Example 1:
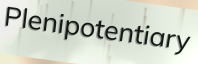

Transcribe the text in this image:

Plenipotentiary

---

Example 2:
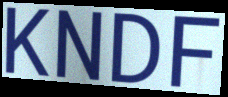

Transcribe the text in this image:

KNDF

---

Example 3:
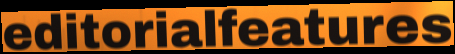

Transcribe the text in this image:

editorialfeatures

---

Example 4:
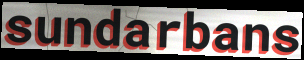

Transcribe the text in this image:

sundarbans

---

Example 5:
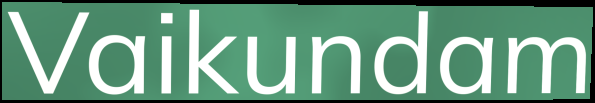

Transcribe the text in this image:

Vaikundam